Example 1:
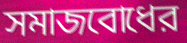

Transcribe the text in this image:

সমাজবোধের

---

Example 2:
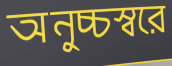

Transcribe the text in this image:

অনুচ্চস্বরে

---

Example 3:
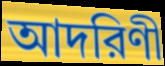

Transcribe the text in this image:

আদরিণী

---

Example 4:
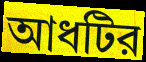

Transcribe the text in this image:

আধটির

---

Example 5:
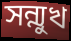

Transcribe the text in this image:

সন্মুখ